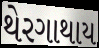
થેરગાથાય